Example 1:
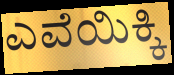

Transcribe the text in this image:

ಎವೆಯಿಕ್ಕಿ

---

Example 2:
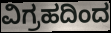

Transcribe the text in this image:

ವಿಗ್ರಹದಿಂದ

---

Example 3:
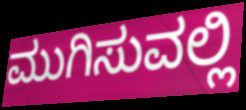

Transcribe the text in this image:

ಮುಗಿಸುವಲ್ಲಿ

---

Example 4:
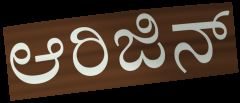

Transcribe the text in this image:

ಆರಿಜಿನ್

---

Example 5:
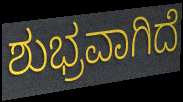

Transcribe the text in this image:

ಶುಭ್ರವಾಗಿದೆ